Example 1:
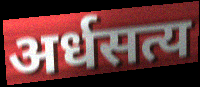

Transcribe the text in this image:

अर्धसत्य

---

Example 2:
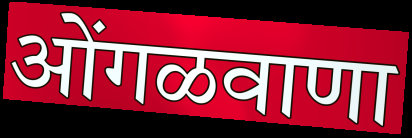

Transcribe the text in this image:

ओंगळवाणा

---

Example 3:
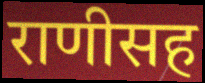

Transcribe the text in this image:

राणीसह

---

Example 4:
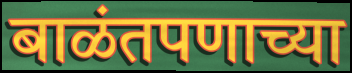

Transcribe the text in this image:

बाळंतपणाच्या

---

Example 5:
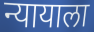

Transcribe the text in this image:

न्यायाला